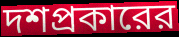
দশপ্রকারের